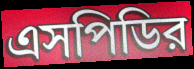
এসপিডির